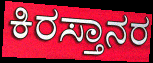
ಕಿರಸ್ತಾನರ